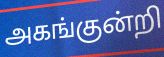
அகங்குன்றி